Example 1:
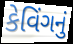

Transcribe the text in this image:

કેવિંગનું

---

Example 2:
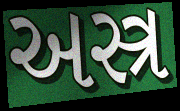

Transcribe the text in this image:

અસ્ત્ર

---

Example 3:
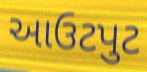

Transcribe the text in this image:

આઉટપુટ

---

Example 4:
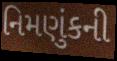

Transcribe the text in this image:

નિમણુંકની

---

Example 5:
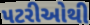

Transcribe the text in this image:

પટરીઓથી